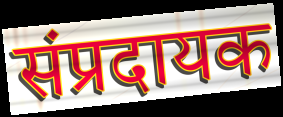
संप्रदायक